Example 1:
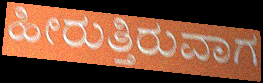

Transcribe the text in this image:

ಹೀರುತ್ತಿರುವಾಗ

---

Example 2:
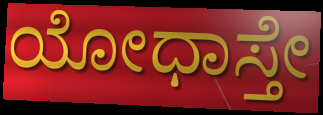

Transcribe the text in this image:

ಯೋಧಾಸ್ತೇ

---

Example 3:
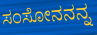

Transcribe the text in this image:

ಸಂಸೋನನನ್ನ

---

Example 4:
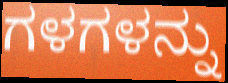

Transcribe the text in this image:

ಗಳಗಳನ್ನು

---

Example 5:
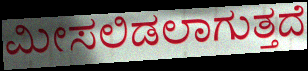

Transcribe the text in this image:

ಮೀಸಲಿಡಲಾಗುತ್ತದೆ